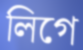
লিগে